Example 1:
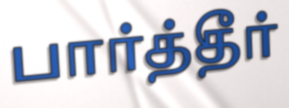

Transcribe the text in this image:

பார்த்தீர்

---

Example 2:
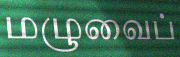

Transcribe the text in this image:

மழுவைப்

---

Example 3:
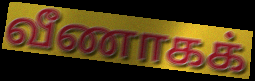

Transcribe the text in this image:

வீணாகக்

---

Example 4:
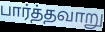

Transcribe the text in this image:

பார்த்தவாறு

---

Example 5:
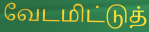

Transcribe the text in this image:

வேடமிட்டுத்